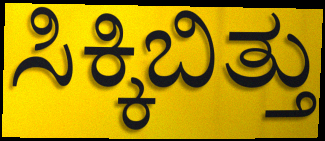
ಸಿಕ್ಕಿಬಿತ್ತು